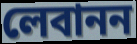
লেবানন